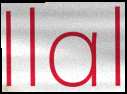
Ilal